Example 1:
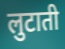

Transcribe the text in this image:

लुटाती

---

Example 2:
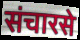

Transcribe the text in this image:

संचारसे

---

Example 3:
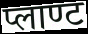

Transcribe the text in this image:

प्लाण्ट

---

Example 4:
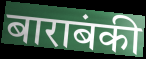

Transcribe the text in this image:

बाराबंकी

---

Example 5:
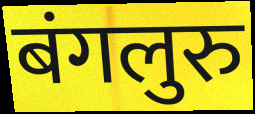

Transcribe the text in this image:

बंगलुरु